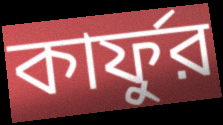
কার্ফুর